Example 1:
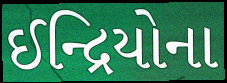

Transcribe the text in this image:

ઈન્દ્રિયોના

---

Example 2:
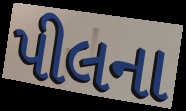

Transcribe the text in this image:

પીલના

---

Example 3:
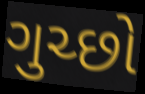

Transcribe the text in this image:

ગુચ્છો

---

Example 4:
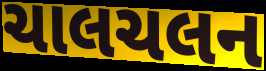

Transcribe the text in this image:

ચાલચલન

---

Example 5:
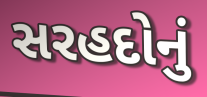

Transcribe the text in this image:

સરહદોનું